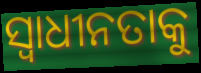
ସ୍ବାଧୀନତାକୁ